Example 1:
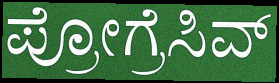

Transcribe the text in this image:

ಪ್ರೋಗ್ರೆಸಿವ್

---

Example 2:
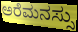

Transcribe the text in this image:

ಅರೆಮನಸ್ಸು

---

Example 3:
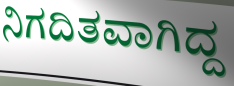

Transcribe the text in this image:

ನಿಗದಿತವಾಗಿದ್ದ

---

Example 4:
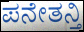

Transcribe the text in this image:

ಪನೇತನ್ತಿ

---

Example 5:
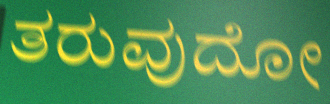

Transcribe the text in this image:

ತರುವುದೋ